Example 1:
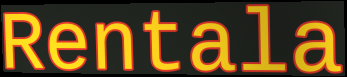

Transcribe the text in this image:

Rentala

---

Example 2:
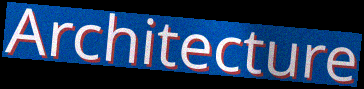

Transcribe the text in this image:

Architecture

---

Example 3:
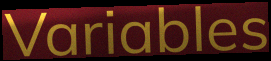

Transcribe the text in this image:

Variables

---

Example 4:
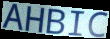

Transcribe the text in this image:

AHBIC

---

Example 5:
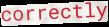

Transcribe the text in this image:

correctly